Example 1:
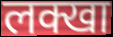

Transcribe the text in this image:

लक्खा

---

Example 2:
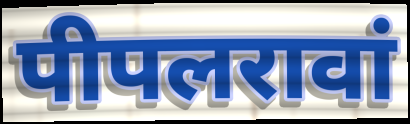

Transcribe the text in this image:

पीपलरावां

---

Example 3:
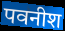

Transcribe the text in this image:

पवनीश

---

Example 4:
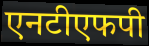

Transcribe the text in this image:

एनटीएफपी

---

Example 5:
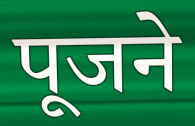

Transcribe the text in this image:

पूजने